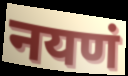
नयणं